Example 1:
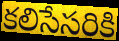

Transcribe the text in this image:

కలిసేసరికి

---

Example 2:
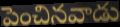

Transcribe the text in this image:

పెంచినవాడు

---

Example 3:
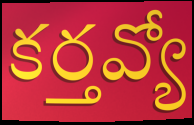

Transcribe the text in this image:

కర్తవ్యో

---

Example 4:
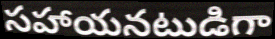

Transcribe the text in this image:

సహాయనటుడిగా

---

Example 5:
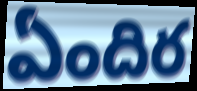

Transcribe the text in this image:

ఏందిర